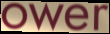
ower